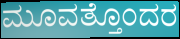
ಮೂವತ್ತೊಂದರ